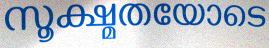
സൂക്ഷ്മതയോടെ